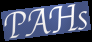
PAHs